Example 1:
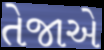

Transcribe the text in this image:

તેજાએ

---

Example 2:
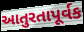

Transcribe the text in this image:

આતુરતાપૂર્વક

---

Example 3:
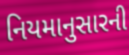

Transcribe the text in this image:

નિયમાનુસારની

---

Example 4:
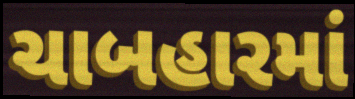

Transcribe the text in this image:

ચાબહારમાં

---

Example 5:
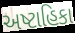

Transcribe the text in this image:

અષ્ટાહિકા